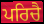
ਪਰਿਚੈ